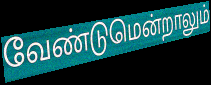
வேண்டுமென்றாலும்